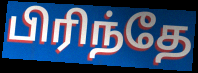
பிரிந்தே